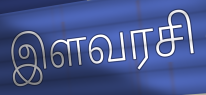
இளவரசி